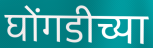
घोंगडीच्या